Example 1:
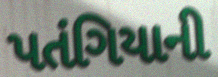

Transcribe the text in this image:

પતંગિયાની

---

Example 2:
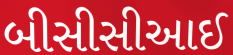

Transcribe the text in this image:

બીસીસીઆઈ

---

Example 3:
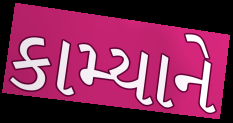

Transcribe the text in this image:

કામ્યાને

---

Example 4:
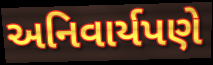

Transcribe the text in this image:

અનિવાર્યપણે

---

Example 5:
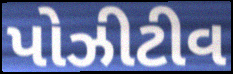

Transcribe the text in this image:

પોઝીટીવ